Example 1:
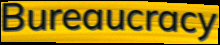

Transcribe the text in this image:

Bureaucracy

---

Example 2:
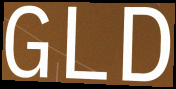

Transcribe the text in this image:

GLD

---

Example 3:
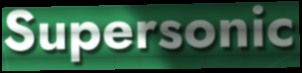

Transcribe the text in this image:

Supersonic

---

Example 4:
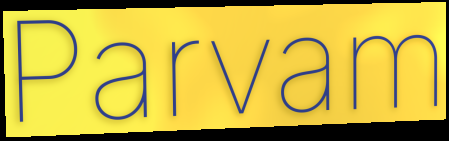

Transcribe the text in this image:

Parvam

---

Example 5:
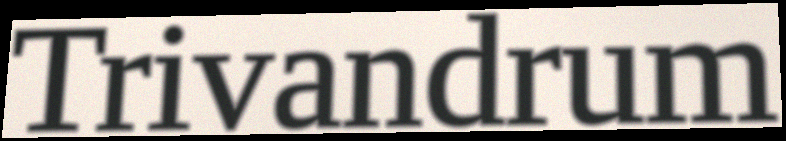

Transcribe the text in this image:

Trivandrum